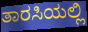
ತಾರಸಿಯಲ್ಲಿ